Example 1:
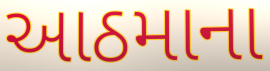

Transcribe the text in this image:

આઠમાના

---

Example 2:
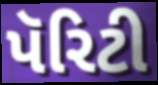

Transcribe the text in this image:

પૅરિટી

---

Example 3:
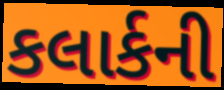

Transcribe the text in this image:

કલાર્કની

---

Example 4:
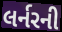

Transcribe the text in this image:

લર્નરની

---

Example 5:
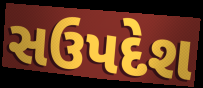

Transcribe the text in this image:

સઉપદેશ